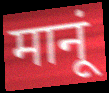
मानूं